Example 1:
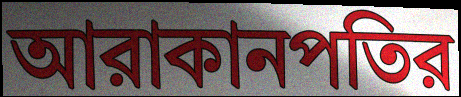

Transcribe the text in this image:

আরাকানপতির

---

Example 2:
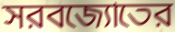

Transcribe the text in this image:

সরবজ্যোতের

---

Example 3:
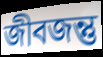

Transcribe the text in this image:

জীবজন্তু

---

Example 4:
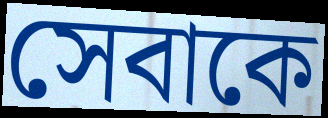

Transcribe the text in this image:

সেবাকে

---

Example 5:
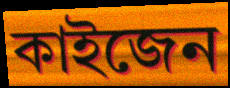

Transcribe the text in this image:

কাইজেন